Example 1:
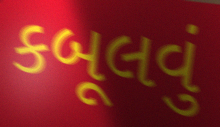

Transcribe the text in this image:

કબૂલવું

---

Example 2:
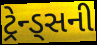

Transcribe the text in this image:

ટ્રેન્ડ્સની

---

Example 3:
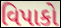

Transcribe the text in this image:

વિપાકો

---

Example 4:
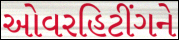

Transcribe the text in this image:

ઓવરહિટીંગને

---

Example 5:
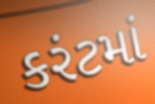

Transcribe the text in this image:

કરંટમાં